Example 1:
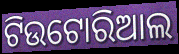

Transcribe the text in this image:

ଟିଉଟୋରିଆଲ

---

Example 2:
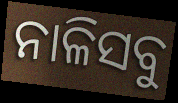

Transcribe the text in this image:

ନାଳିସବୁ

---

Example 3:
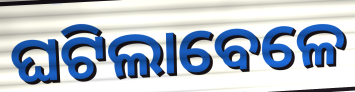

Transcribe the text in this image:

ଘଟିଲାବେଳେ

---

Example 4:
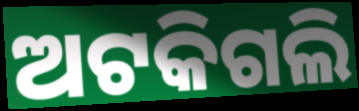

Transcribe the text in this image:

ଅଟକିଗଲି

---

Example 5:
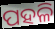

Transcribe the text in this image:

ପହଳି